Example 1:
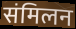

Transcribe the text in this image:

संमिलन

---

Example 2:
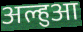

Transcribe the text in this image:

अल्हुआ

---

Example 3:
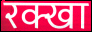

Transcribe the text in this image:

रक्खा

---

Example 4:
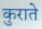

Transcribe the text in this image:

कुराते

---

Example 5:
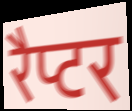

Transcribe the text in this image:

रैप्टर